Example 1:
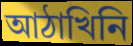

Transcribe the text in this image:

আঠাখিনি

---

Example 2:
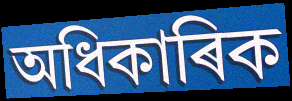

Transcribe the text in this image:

অধিকাৰিক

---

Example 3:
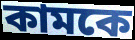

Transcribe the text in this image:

কামকে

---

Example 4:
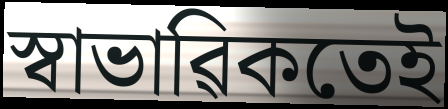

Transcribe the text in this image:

স্বাভাৱিকতেই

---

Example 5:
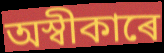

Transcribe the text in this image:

অস্বীকাৰে